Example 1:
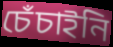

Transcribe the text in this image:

চেঁচাইনি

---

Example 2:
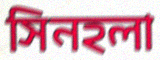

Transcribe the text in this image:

সিনহলা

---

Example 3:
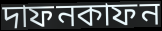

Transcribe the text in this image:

দাফনকাফন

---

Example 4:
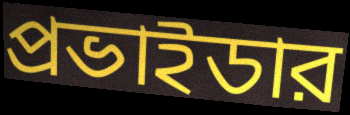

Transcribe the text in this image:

প্রভাইডার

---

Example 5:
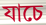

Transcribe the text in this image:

যাচে